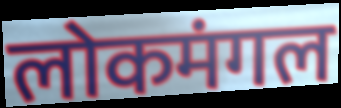
लोकमंगल